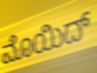
ಮೊಯಿದ್